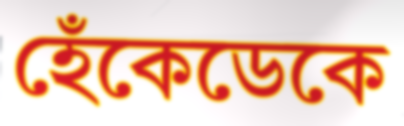
হেঁকেডেকে